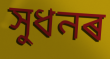
সুধনৰ